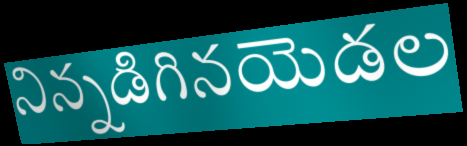
నిన్నడిగినయెడల